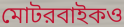
মোটরবাইকও